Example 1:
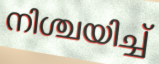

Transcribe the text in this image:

നിശ്ചയിച്ച്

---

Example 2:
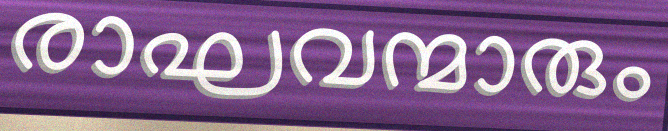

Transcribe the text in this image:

രാഘവന്മാരും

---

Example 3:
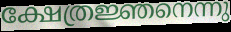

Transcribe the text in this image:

ക്ഷേത്രജ്ഞനെന്നു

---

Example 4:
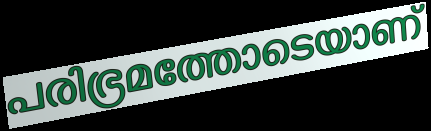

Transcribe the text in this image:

പരിഭ്രമത്തോടെയാണ്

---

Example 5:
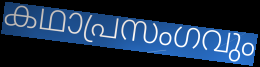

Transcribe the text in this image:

കഥാപ്രസംഗവും